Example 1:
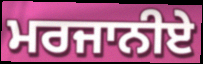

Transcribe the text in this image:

ਮਰਜਾਨੀਏ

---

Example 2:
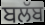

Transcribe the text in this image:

ਬਲੱਬ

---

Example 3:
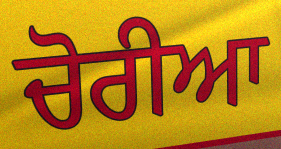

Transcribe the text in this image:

ਚੋਰੀਆ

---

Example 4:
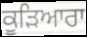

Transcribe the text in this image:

ਕੂੜਿਆਰਾ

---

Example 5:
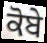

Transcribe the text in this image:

ਕੋਬੇ